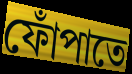
ফোঁপাতে